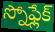
స్నోఫ్లేక్